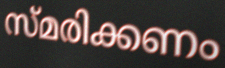
സ്മരിക്കണം